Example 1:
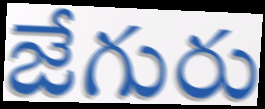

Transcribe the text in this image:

జేగురు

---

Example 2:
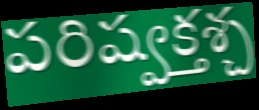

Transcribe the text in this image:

పరిష్వక్తశ్చ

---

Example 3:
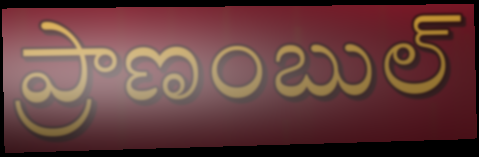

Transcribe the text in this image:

ప్రాణంబుల్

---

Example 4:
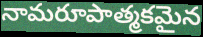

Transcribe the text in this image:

నామరూపాత్మకమైన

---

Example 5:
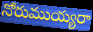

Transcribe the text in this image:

నోరుముయ్యరా